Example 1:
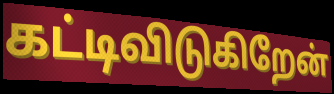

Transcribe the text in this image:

கட்டிவிடுகிறேன்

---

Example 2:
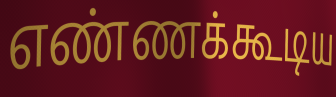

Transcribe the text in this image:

எண்ணக்கூடிய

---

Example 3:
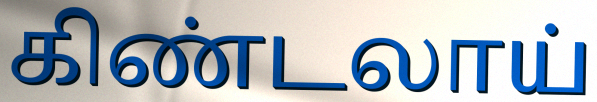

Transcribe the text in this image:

கிண்டலாய்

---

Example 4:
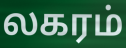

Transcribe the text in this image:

லகரம்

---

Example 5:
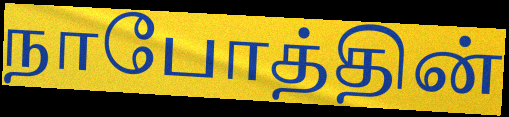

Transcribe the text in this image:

நாபோத்தின்